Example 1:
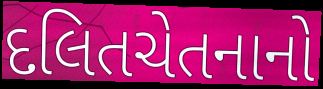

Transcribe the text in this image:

દલિતચેતનાનો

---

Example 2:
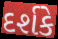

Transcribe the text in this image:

દર્શકે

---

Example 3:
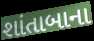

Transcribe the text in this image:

શાંતાબાના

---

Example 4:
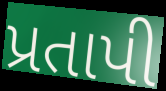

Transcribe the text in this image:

પ્રતાપી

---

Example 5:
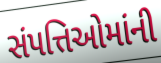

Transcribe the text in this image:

સંપત્તિઓમાંની